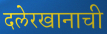
दलेरखानाची